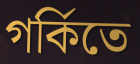
গর্কিতে